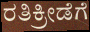
ರತಿಕ್ರೀಡೆಗೆ